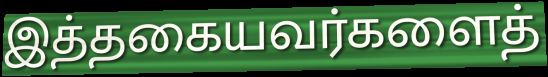
இத்தகையவர்களைத்